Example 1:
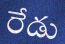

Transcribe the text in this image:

రేడు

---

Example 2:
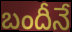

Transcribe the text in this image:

బందీనే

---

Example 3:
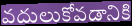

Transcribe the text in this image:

వదులుకోవడానికి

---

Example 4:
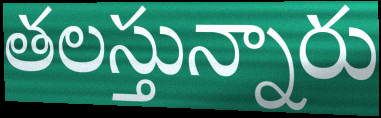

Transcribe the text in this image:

తలస్తున్నారు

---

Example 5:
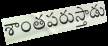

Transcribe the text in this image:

శాంతపరుస్తాడు